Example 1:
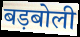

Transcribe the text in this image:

बड़बोली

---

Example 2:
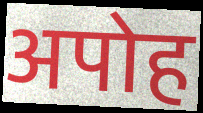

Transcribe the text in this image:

अपोह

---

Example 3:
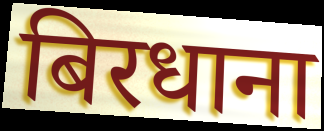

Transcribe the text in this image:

बिरधाना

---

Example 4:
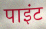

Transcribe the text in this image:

पाइंट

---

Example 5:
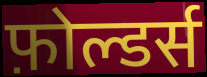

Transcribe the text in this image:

फ़ोल्डर्स